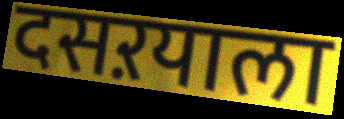
दसऱयाला